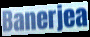
Banerjea